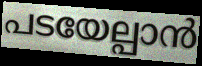
പടയേല്പാൻ